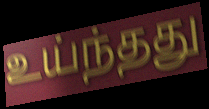
உய்ந்தது